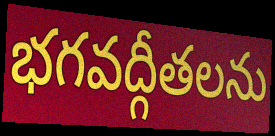
భగవద్గీతలను